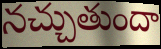
నచ్చుతుందా